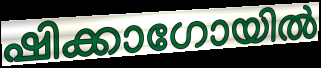
ഷിക്കാഗോയിൽ